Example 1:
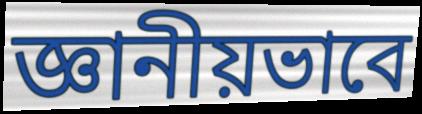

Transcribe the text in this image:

জ্ঞানীয়ভাবে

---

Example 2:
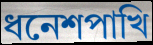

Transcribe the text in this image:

ধনেশপাখি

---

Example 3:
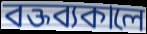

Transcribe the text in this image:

বক্তব্যকালে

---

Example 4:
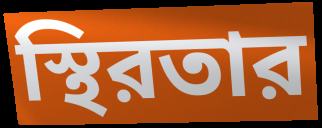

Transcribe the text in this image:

স্থিরতার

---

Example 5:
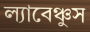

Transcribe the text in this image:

ল্যাবেঞ্চুস